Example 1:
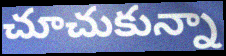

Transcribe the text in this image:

చూచుకున్నా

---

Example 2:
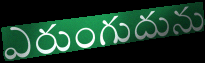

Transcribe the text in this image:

ఎరుంగుదును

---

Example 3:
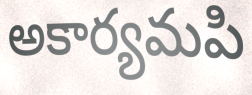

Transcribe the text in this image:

అకార్యమపి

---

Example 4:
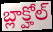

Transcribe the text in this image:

బ్లాక్హోల్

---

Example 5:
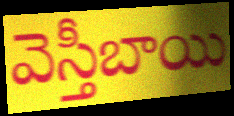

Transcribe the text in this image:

వెస్తీబాయి